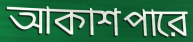
আকাশপারে